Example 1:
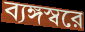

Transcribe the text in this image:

ব্যঙ্গস্বরে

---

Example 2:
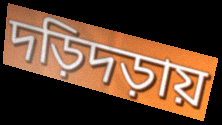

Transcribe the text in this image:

দড়িদড়ায়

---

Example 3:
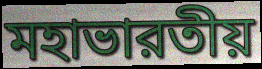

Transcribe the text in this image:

মহাভারতীয়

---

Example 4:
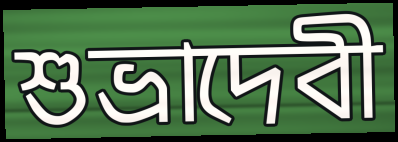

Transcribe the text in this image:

শুভ্রাদেবী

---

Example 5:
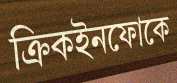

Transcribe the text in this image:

ক্রিকইনফোকে